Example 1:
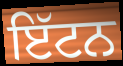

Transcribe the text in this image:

ਇੱਟਨ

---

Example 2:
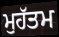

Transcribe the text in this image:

ਮੁਹੱਤਮ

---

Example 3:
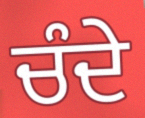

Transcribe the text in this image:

ਚੰਦੇ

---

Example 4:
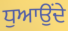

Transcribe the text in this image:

ਧੁਆਉਂਦੇ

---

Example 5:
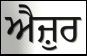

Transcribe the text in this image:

ਐਜ਼ੁਰ